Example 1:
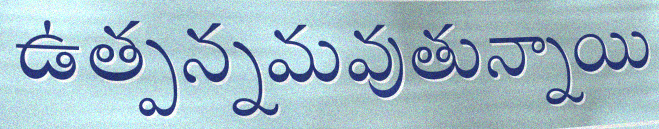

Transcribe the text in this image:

ఉత్పన్నమవుతున్నాయి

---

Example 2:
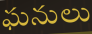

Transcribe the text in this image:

ఘనులు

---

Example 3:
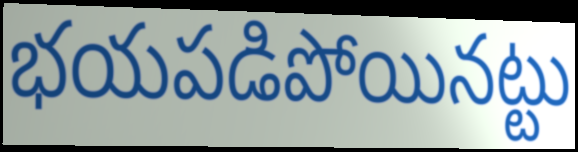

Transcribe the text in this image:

భయపడిపోయినట్టు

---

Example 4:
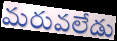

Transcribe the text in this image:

మరువలేడు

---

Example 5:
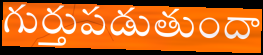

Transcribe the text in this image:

గుర్తుపడుతుందా